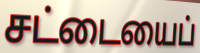
சட்டையைப்